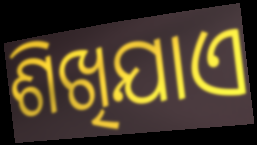
ଶିଖିଯାଏ